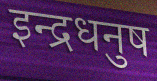
इन्द्रधनुष